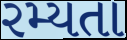
રમ્યતા